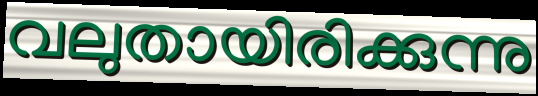
വലുതായിരിക്കുന്നു